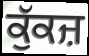
ਕੁੱਕਜ਼